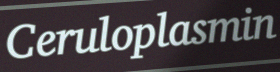
Ceruloplasmin